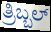
ತ್ರಿಬ್ಬಲ್